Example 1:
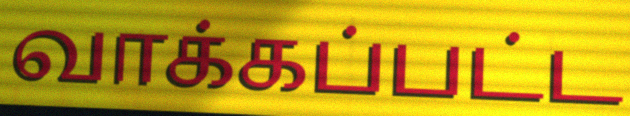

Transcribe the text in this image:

வாக்கப்பட்ட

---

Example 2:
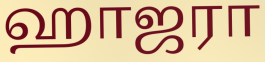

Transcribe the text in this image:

ஹாஜரா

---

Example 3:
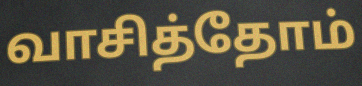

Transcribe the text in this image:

வாசித்தோம்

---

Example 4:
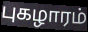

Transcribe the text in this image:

புகழாரம்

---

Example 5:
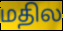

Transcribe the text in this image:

மதில